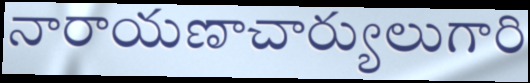
నారాయణాచార్యులుగారి